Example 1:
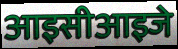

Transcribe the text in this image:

आइसीआइजे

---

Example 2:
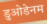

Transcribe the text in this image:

डुओडेनम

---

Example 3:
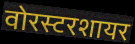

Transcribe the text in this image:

वोरस्टरशायर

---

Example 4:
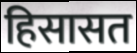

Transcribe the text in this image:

हिसासत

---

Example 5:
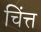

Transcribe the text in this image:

चिंत्त